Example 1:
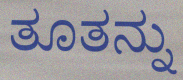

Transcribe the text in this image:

ತೂತನ್ನು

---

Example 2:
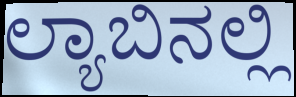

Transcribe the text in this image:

ಲ್ಯಾಬಿನಲ್ಲಿ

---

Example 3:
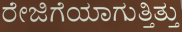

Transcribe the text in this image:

ರೇಜಿಗೆಯಾಗುತ್ತಿತ್ತು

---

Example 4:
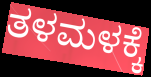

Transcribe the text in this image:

ತಳಮಳಕ್ಕೆ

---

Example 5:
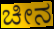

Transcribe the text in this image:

ಚೀನ